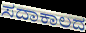
ಸದಾಕಾಲದ